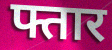
फ्तार